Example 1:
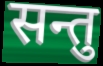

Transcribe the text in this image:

सन्‍तु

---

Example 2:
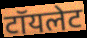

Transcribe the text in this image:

टॉयलेट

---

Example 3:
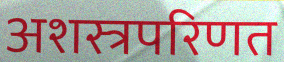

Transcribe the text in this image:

अशस्त्रपरिणत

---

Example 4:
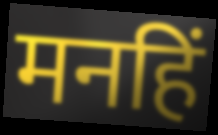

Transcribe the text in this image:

मनहिं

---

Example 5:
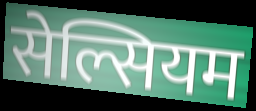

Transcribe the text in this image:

सेल्सियम